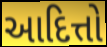
આદિત્તો